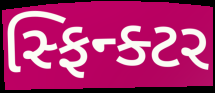
સ્ફિન્ક્ટર